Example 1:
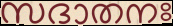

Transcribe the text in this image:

സദാതനഃ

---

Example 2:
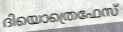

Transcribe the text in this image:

ദിയൊത്രെഫേസ്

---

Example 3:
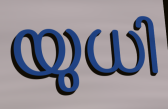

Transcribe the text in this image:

യുധി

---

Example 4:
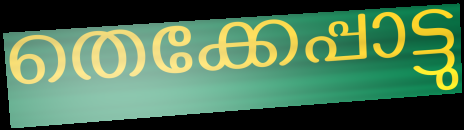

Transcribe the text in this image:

തെക്കേപ്പാട്ടു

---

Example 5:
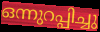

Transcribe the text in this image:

ഒന്നുറപ്പിച്ചു